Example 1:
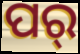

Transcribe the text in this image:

ପର୍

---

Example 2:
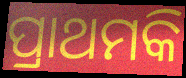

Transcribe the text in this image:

ପ୍ରାଥମକି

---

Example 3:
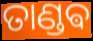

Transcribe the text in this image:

ତାଣ୍ଡଵ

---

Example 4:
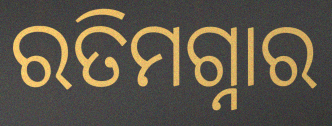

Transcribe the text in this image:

ରତିମଗ୍ନାର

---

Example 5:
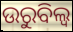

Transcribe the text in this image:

ଉରୁବିଲ୍ୱ